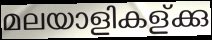
മലയാളികള്ക്കു